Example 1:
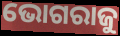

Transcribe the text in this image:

ଭୋଗରାଜୁ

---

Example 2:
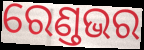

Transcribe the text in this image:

ରେଣ୍ଡଭର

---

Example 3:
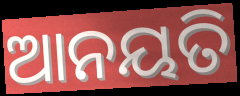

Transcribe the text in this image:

ଆନୟତି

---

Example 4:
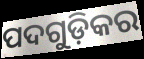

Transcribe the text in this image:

ପଦଗୁଡ଼ିକର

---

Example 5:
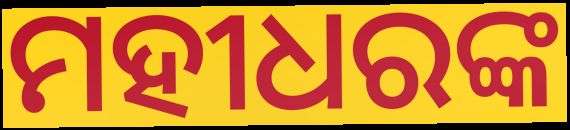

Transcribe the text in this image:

ମହୀଧରଙ୍କ